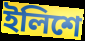
ইলিশে